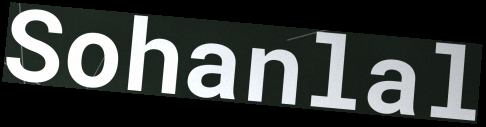
Sohanlal